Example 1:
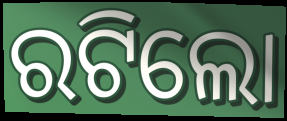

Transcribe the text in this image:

ରଟିଲୋ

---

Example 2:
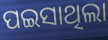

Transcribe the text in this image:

ପଇସାଥିଲା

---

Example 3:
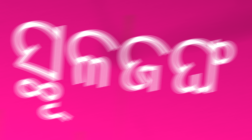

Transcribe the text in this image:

ସ୍ଥୂଳଜଙ୍ଘ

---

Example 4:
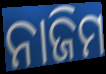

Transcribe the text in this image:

ନାଜିମ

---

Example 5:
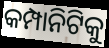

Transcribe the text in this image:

କମ୍ପାନିଟିକୁ